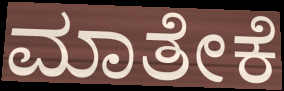
ಮಾತೇಕೆ